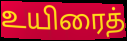
உயிரைத்